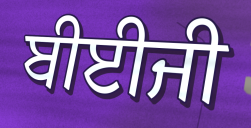
ਬੀਈਜੀ